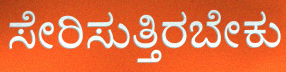
ಸೇರಿಸುತ್ತಿರಬೇಕು